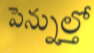
పెన్నుల్తో